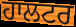
ਹਾਲਟਰ